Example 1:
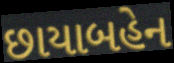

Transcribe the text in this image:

છાયાબહેન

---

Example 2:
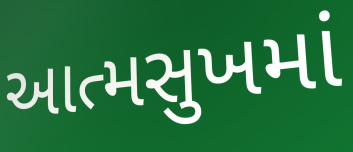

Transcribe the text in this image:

આત્મસુખમાં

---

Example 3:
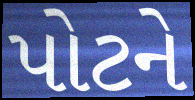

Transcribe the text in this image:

પોટને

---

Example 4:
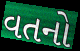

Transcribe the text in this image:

વતનો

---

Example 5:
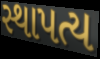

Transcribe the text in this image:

સ્થાપત્ય